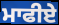
ਮਾਫੀਏ